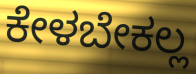
ಕೇಳಬೇಕಲ್ಲ